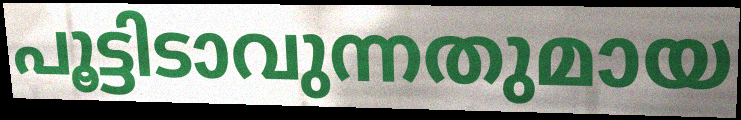
പൂട്ടിടാവുന്നതുമായ